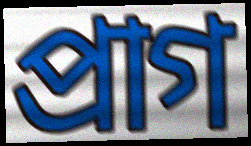
প্ৰাগ